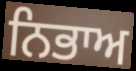
ਨਿਭਾਅ